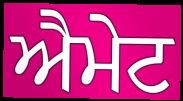
ਐਮੇਟ